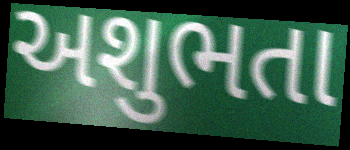
અશુભતા